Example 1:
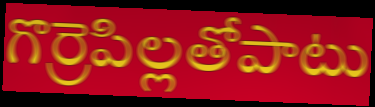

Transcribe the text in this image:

గొర్రెపిల్లతోపాటు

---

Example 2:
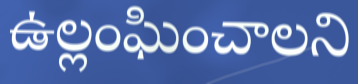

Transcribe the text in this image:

ఉల్లంఘించాలని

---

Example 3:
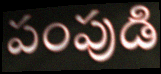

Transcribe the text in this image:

పంపుడి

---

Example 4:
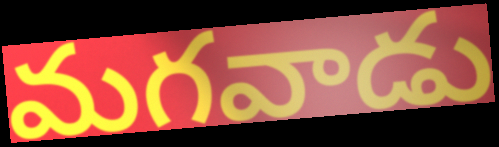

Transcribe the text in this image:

మగవాడు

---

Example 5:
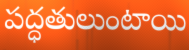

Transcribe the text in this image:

పద్ధతులుంటాయి